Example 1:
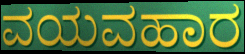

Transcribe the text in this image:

ವಯವಹಾರ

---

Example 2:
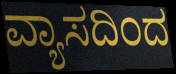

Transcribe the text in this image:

ವ್ಯಾಸದಿಂದ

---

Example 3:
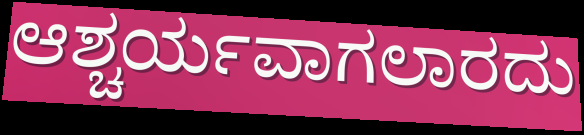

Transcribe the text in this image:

ಆಶ್ಚರ್ಯವಾಗಲಾರದು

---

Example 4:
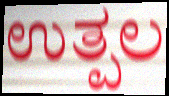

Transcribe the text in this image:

ಉತ್ಪಲ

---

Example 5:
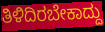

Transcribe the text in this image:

ತಿಳಿದಿರಬೇಕಾದ್ದು